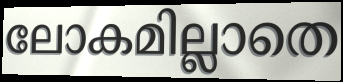
ലോകമില്ലാതെ